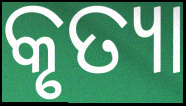
କୃତ୍ୟା